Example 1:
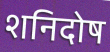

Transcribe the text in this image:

शनिदोष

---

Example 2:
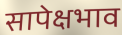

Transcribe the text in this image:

सापेक्षभाव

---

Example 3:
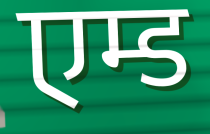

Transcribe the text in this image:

एम्ड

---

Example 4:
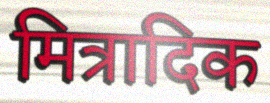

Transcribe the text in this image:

मित्रादिक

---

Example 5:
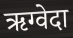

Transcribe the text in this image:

ऋग्वेदा